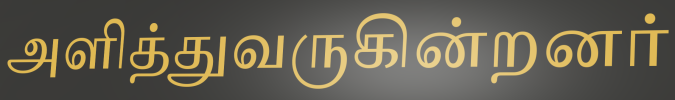
அளித்துவருகின்றனர்